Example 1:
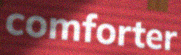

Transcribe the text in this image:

comforter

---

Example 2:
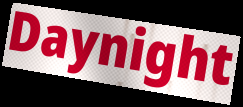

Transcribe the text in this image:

Daynight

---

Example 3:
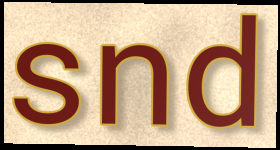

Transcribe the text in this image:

snd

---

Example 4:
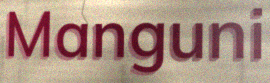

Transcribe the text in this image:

Manguni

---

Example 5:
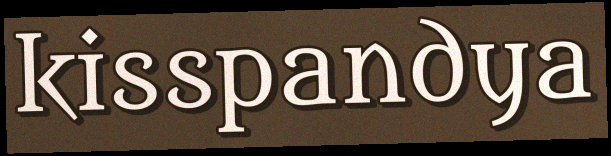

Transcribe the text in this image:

kisspandya